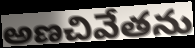
అణచివేతను